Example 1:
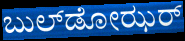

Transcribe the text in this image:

ಬುಲ್‌ಡೋಝರ್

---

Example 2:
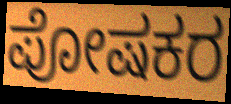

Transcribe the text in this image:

ಪೋಷಕರ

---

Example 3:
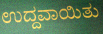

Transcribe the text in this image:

ಉದ್ದವಾಯಿತು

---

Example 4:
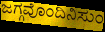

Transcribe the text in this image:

ಜಗ್ಗವೊಂದಿನಿಸುಂ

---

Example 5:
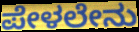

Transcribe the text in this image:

ಪೇಳಲೇನು